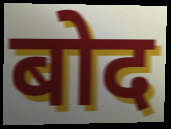
बोद